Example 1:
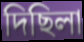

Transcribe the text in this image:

দিছিলা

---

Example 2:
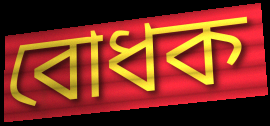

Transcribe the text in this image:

বোধক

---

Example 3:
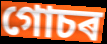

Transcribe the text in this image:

গোচৰ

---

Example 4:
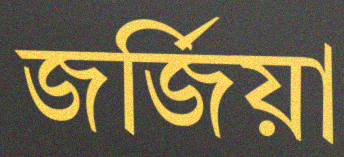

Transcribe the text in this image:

জৰ্জিয়া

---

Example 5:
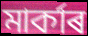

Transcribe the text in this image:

মাৰ্কাৰ